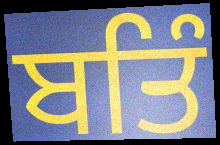
ਬਤਿੰ